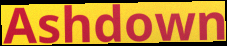
Ashdown